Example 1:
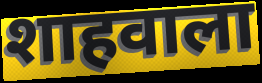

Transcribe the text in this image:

शाहवाला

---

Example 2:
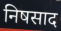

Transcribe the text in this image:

निषसाद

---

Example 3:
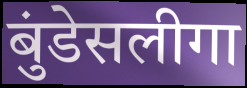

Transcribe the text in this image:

बुंडेसलीगा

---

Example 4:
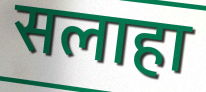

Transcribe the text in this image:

सलाहा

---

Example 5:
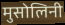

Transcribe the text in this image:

मुसोलिनी